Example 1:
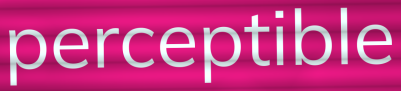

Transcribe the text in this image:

perceptible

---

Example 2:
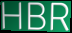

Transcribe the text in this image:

HBR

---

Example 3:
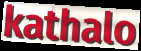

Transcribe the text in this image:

kathalo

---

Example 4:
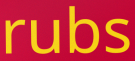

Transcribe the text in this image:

rubs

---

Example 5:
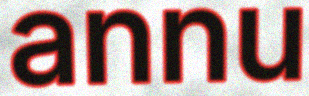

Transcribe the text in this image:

annu